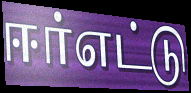
ஈர்எட்டு